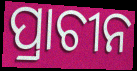
ପ୍ରାଚୀନ